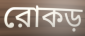
রোকড়